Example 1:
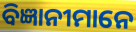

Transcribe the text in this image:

ବିଜ୍ଞାନୀମାନେ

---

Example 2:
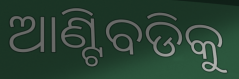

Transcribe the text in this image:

ଆଣ୍ଟିବଡିକୁ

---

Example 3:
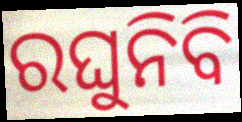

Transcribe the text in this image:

ରଘୁନିବି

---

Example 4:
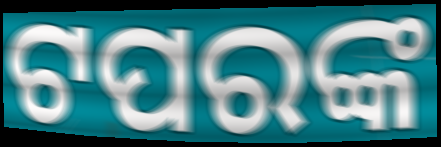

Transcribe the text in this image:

ଟପରଙ୍କ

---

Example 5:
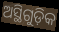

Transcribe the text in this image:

ଅସ୍ଥିଗୁଡ଼ିକ